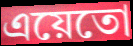
এয়েতো